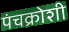
पंचक्रोशी